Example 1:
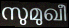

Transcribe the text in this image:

സുമുഖീ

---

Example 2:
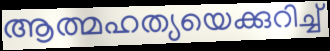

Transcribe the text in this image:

ആത്മഹത്യയെക്കുറിച്ച്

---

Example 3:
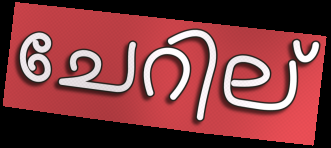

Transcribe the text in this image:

ചേറില്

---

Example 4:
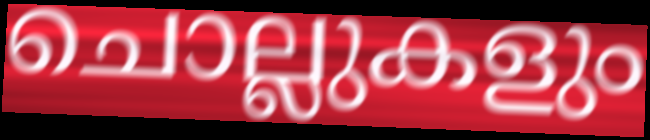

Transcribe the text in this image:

ചൊല്ലുകളും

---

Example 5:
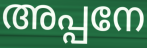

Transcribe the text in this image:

അപ്പനേ